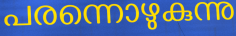
പരന്നൊഴുകുന്നു